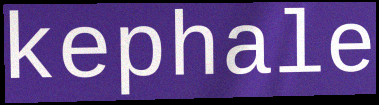
kephale